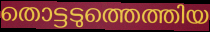
തൊട്ടടുത്തെത്തിയ